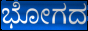
ಭೋಗದ